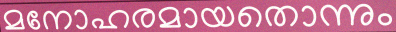
മനോഹരമായതൊന്നും